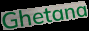
Ghetana